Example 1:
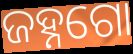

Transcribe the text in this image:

ଜହ୍ନଗୋ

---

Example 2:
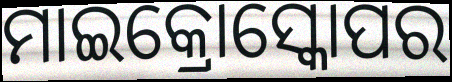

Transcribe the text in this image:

ମାଇକ୍ରୋସ୍କୋପର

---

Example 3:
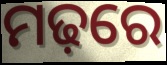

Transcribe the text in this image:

ମଢ଼ରେ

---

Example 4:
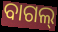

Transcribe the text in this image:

ବାଗଲ୍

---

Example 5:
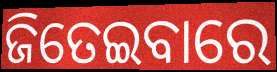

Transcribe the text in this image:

ଜିତେଇବାରେ